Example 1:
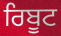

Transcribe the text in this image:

ਰਿਬੂਟ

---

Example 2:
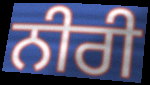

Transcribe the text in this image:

ਨੀਰੀ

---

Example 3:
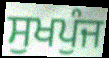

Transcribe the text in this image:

ਸੁਖਪੁੰਜ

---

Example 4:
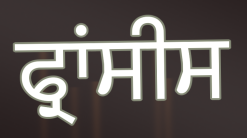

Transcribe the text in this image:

ਫ੍ਰਾਂਸੀਸ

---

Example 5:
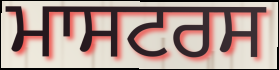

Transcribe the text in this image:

ਮਾਸਟਰਸ